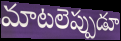
మాటలెప్పుడూ